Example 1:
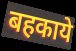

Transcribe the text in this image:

बहकाये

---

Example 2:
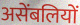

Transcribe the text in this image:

असेंबलियों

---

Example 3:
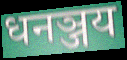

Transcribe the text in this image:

धनञ्जय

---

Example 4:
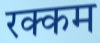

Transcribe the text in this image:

रक्कम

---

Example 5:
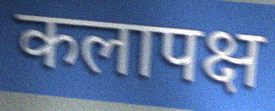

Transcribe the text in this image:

कलापक्ष